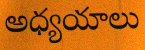
అధ్యయాలు